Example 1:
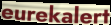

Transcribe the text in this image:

eurekalert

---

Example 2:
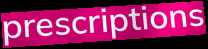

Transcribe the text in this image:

prescriptions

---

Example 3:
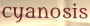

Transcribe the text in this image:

cyanosis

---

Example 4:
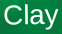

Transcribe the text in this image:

Clay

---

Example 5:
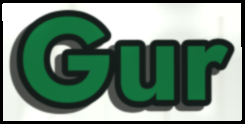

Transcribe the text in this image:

Gur